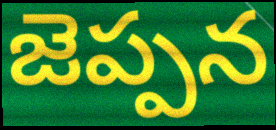
జెప్పన